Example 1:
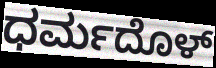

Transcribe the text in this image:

ಧರ್ಮದೊಳ್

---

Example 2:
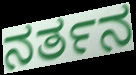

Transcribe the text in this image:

ನರ್ತನ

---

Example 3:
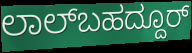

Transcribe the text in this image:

ಲಾಲ್‌ಬಹದ್ದೂರ್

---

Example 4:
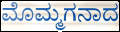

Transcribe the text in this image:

ಮೊಮ್ಮಗನಾದ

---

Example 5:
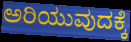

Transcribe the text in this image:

ಅರಿಯುವುದಕ್ಕೆ